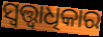
ସ୍ୱତ୍ତ୍ୱାଧିକାର